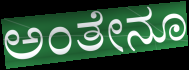
ಅಂತೇನೂ